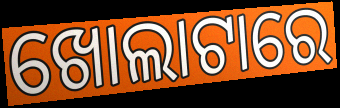
ଖୋଲାଟାରେ